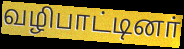
வழிபாட்டினர்